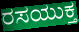
ರಸಯುಕ್ತ